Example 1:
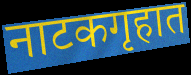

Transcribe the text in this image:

नाटकगृहात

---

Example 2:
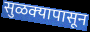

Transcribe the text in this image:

सुळक्यापासून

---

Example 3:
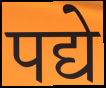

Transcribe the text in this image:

पद्ये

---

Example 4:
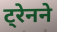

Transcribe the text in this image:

ट्रेनने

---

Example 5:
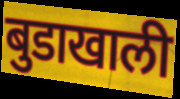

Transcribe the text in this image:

बुडाखाली